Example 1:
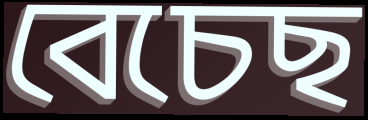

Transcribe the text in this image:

বেচেছ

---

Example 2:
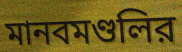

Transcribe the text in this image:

মানবমণ্ডলির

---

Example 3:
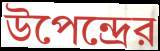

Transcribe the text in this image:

উপেন্দ্রের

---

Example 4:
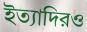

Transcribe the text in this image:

ইত্যাদিরও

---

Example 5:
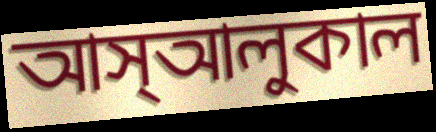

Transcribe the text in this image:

আস্আলুকাল